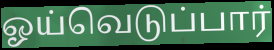
ஓய்வெடுப்பார்